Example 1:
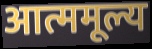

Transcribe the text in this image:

आत्ममूल्य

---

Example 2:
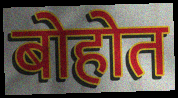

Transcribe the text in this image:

बोहोत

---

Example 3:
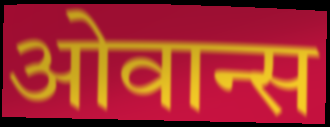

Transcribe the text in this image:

ओवान्स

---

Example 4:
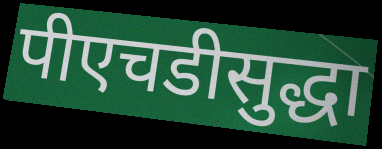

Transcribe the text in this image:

पीएचडीसुद्धा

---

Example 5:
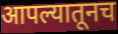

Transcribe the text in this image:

आपल्यातूनच